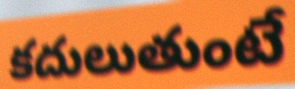
కదులుతుంటే